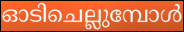
ഓടിചെല്ലുമ്പോൾ